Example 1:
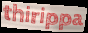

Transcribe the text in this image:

thirippa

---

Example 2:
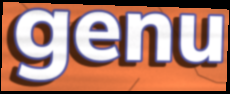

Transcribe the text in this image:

genu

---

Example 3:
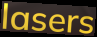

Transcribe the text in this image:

lasers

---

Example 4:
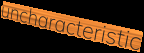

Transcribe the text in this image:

uncharacteristic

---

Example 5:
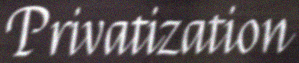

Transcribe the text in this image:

Privatization